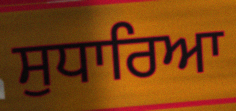
ਸੁਧਾਰਿਆ